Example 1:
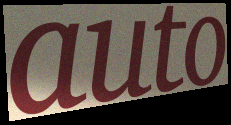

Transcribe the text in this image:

auto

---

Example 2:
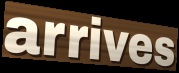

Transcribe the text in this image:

arrives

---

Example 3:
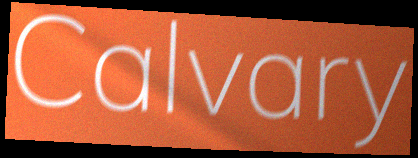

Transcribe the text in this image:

Calvary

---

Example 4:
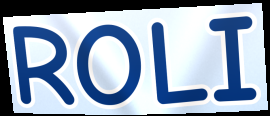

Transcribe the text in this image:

ROLI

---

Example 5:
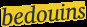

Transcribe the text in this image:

bedouins